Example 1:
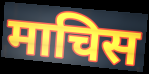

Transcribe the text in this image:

माचिस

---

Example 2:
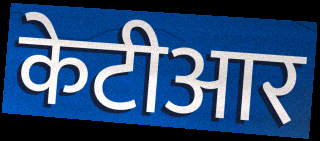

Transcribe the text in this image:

केटीआर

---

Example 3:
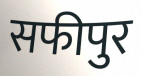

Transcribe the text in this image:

सफीपुर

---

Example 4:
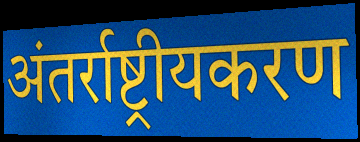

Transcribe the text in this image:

अंतर्राष्ट्रीयकरण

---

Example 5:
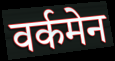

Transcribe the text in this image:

वर्कमेन